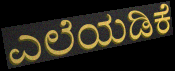
ಎಲೆಯಡಿಕೆ